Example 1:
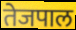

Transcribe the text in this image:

तेजपाल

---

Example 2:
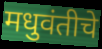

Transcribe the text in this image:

मधुवंतीचे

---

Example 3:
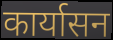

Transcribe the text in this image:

कार्यासन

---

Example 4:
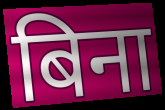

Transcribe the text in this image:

बिना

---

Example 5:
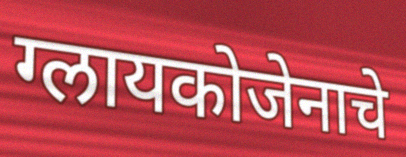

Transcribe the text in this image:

ग्लायकोजेनाचे